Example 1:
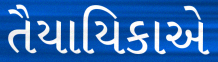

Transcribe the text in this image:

તૈયાયિકાએ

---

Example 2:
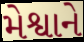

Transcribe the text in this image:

મેશ્વાને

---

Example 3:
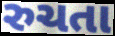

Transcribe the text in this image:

રુચતા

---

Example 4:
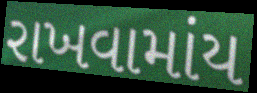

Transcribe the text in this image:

રાખવામાંય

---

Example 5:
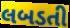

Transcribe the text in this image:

લબડતી